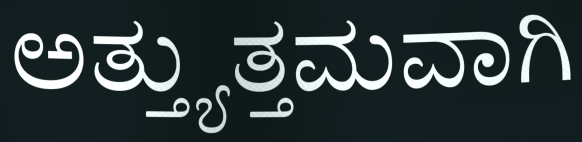
ಅತ್ತ್ಯುತ್ತಮವಾಗಿ